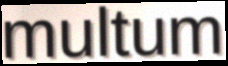
multum